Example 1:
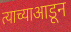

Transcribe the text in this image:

त्याच्याआडून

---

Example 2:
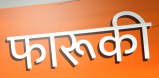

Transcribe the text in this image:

फारूकी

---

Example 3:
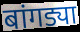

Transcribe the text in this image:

बांगड्या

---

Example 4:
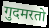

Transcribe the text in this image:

गुदमरतो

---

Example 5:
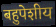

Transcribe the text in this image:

बहुपेशीय